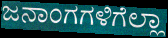
ಜನಾಂಗಗಳಿಗೆಲ್ಲಾ